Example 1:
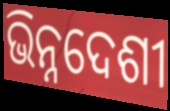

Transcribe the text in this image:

ଭିନ୍ନଦେଶୀ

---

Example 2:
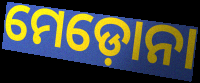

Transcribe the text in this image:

ମେଡ଼ୋନା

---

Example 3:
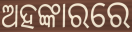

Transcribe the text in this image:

ଅହଙ୍କାରରେ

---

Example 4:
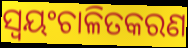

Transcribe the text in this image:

ସ୍ୱୟଂଚାଳିତକରଣ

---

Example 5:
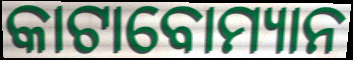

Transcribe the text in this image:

କାଟାବୋମ୍ୟାନ